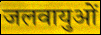
जलवायुओं